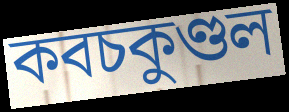
কবচকুণ্ডল